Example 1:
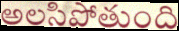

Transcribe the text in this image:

అలసిపోతుంది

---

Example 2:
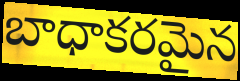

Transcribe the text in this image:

బాధాకరమైన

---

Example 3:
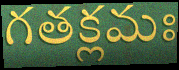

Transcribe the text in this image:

గతక్లమః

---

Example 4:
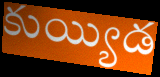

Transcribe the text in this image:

కుయ్యిడ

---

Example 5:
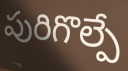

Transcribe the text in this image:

పురిగొల్పే